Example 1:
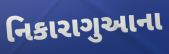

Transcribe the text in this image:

નિકારાગુઆના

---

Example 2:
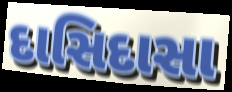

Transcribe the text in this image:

દાસિદાસા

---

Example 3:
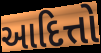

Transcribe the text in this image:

આદિત્તો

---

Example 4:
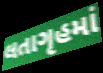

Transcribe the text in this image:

લતાગૃહમાં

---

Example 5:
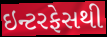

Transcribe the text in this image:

ઇન્ટરફેસથી